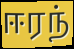
ஈரந்